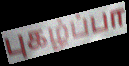
புகழ்ப்பா